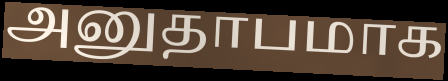
அனுதாபமாக